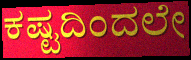
ಕಷ್ಟದಿಂದಲೇ